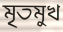
মৃতমুখ